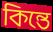
কিন্তে